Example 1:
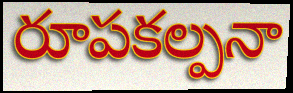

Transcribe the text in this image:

రూపకల్పనా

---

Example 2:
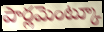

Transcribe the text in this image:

పార్లమెంట్కూ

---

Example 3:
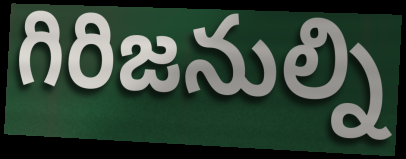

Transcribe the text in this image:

గిరిజనుల్ని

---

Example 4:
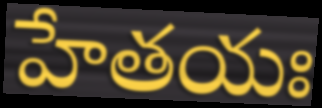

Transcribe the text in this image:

హేతయః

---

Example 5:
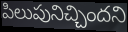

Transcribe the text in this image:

పిలుపునిచ్చిందని